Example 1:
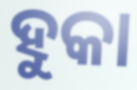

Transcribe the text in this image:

ହୁକା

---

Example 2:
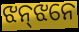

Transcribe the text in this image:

ଝନ୍‌ଝନେ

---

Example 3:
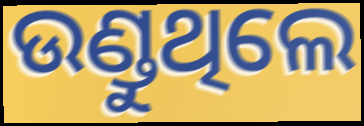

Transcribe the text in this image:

ଉଣ୍ଡୁଥିଲେ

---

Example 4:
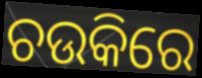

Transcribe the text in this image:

ଚଉକିରେ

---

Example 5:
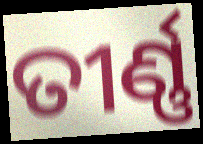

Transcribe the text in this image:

ତୀର୍ଣ୍ଣ